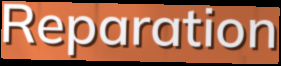
Reparation